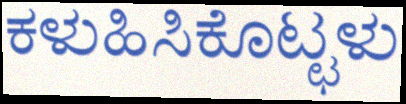
ಕಳುಹಿಸಿಕೊಟ್ಟಳು